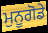
ਮੁਨੂਗੋਡੇ